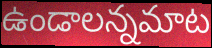
ఉండాలన్నమాట